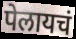
पेलायचं